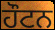
ਹੌਟਨ